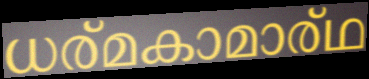
ധര്മകാമാര്ഥ